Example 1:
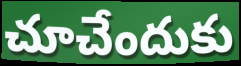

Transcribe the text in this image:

చూచేందుకు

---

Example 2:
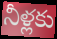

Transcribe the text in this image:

నీళ్లకు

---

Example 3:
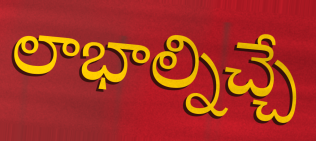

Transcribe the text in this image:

లాభాల్నిచ్చే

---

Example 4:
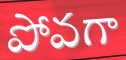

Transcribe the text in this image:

పోవగా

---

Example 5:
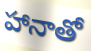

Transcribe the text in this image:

హానాతో